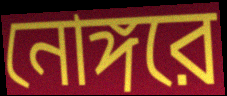
নোঙ্গরে